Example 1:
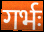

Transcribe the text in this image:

गर्भः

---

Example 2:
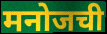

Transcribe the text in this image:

मनोजची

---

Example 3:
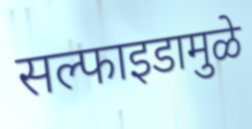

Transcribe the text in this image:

सल्फाइडामुळे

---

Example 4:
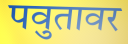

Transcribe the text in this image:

पवुतावर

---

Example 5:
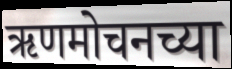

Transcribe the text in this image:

ऋणमोचनच्या